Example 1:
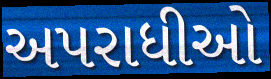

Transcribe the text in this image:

અપરાધીઓ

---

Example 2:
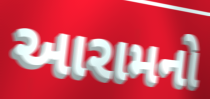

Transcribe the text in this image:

આરામનો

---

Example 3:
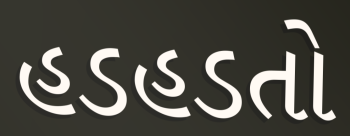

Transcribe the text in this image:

હડહડતો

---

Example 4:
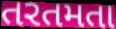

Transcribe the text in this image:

તરતમતા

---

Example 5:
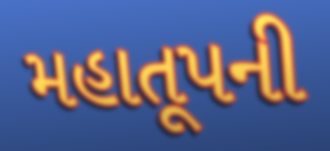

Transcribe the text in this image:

મહાતૂપની